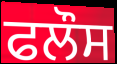
ਫਲੌਸ